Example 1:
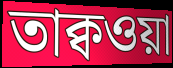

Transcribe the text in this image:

তাক্বওয়া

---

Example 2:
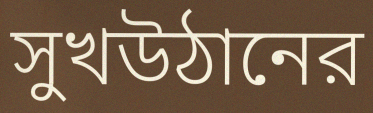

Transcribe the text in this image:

সুখউঠানের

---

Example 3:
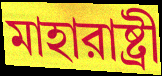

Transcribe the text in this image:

মাহারাষ্ট্রী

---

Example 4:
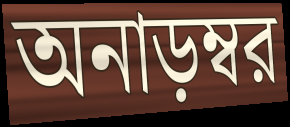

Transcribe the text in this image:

অনাড়ম্বর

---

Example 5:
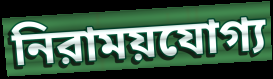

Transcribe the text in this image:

নিরাময়যোগ্য